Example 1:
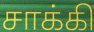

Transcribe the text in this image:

சாக்கி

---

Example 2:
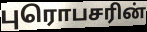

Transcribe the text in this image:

புரொபசரின்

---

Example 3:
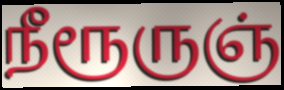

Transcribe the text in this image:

நீரூருஞ்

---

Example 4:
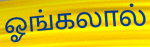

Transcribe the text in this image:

ஓங்கலால்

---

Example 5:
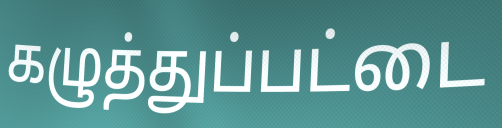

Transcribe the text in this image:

கழுத்துப்பட்டை